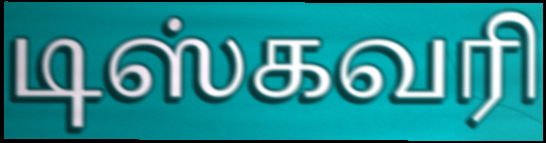
டிஸ்கவரி